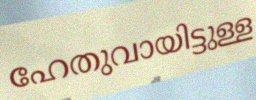
ഹേതുവായിട്ടുള്ള